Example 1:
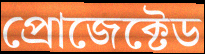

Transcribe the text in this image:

প্রোজেক্টেড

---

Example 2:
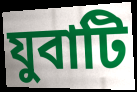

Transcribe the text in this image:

যুবাটি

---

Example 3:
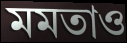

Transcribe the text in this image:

মমতাও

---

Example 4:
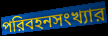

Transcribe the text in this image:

পরিবহনসংখ্যার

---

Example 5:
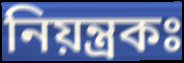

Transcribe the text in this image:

নিয়ন্ত্রকঃ